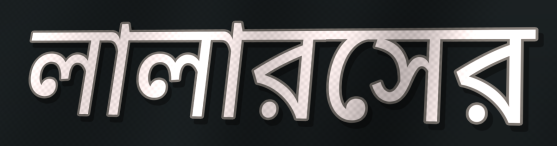
লালারসের